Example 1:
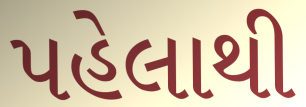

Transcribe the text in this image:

પહેલાથી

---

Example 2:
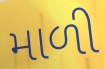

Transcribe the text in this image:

માળી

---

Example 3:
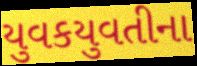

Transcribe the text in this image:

યુવકયુવતીના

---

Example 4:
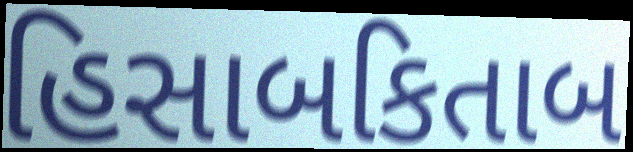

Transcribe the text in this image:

હિસાબકિતાબ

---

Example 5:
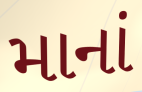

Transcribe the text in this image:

માનાં